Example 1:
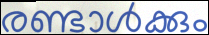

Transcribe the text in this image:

രണ്ടാൾക്കും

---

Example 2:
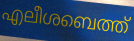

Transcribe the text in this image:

എലീശബെത്ത്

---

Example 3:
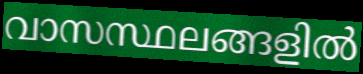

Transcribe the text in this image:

വാസസ്ഥലങ്ങളിൽ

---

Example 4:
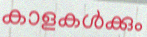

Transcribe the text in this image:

കാളകൾക്കും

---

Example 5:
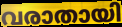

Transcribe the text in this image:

വരാതായി